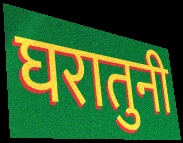
घरातुनी